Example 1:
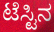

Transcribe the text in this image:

ಟೆಸ್ಟಿನ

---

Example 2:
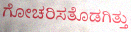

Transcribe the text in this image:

ಗೋಚರಿಸತೊಡಗಿತ್ತು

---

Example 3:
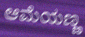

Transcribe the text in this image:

ಆಮೆಯಣ್ಣ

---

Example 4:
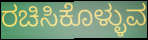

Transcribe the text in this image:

ರಚಿಸಿಕೊಳ್ಳುವ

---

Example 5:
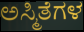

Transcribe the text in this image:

ಅಸ್ಮಿತೆಗಳ